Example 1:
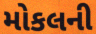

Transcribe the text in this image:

મોકલની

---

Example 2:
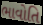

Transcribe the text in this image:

ભાવોતિ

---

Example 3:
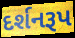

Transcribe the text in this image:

દર્શનરૂપ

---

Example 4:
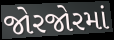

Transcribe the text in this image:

જોરજોરમાં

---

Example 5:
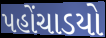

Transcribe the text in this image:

પહોંચાડયો